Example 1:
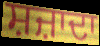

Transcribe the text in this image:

ਸ਼ਜ਼ਾਦਾ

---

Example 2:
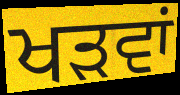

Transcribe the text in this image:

ਖੜਵਾਂ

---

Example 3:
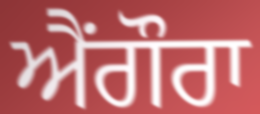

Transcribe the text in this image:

ਐਂਗੌਰਾ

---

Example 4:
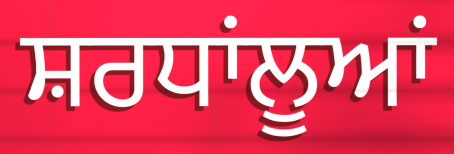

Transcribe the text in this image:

ਸ਼ਰਧਾਂਲੂਆਂ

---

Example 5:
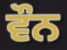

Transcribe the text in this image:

ਵੌਨ